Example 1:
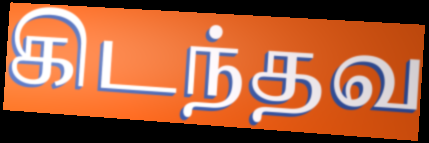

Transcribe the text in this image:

கிடந்தவ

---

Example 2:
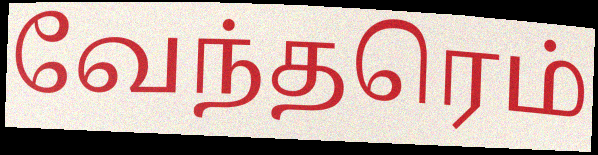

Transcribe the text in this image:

வேந்தரெம்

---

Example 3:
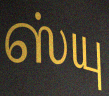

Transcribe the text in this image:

ஸ்யு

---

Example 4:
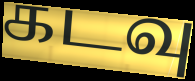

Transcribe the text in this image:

கடவு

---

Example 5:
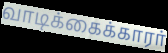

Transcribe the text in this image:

வாடிக்கைக்காரர்